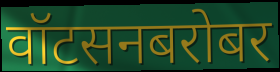
वॉटसनबरोबर